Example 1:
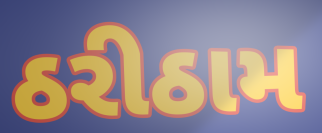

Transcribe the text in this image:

ઠરીઠામ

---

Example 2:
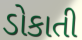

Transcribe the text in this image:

ડોકાતી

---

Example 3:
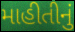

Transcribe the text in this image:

માહીતીનું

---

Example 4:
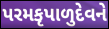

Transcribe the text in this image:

પરમકૃપાળુદેવને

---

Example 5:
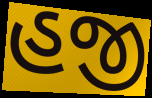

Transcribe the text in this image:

હજી